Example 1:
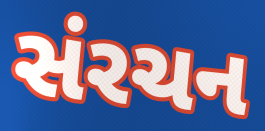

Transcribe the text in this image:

સંરચન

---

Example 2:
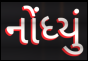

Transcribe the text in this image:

નોંધ્યું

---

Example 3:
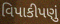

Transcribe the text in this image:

વિપાકીપણું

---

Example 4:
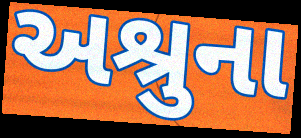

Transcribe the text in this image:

અશ્રુના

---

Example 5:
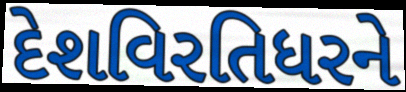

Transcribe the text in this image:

દેશવિરતિધરને